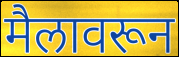
मैलावरून